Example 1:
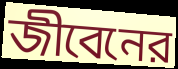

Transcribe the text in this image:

জীবেনের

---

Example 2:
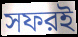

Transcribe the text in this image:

সফরই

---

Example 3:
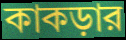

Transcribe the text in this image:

কাকড়ার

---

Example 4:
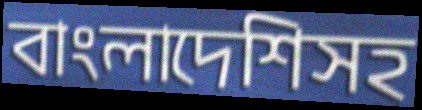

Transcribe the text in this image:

বাংলাদেশিসহ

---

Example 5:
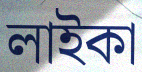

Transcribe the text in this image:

লাইকা